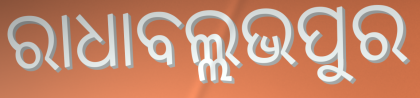
ରାଧାବଲ୍ଲଭପୁର